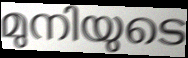
മുനിയുടെ